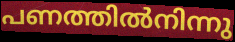
പണത്തിൽനിന്നു